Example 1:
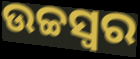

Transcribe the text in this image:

ଉଚ୍ଚସ୍ଵର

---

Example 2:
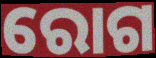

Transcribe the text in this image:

ରୋଗ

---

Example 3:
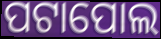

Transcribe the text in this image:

ପଟାପୋଲ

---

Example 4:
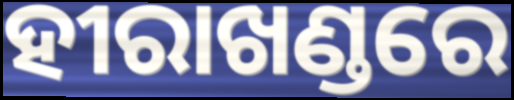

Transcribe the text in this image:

ହୀରାଖଣ୍ଡରେ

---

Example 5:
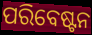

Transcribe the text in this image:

ପରିବେଷ୍ଟନ